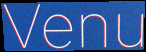
Venu